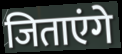
जिताएंगे